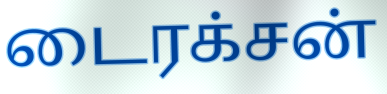
டைரக்சன்